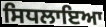
ਸਿਧਲਾਇਆ